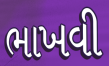
ભાખવી